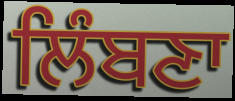
ਲਿੰਬਣਾ